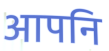
आपनि